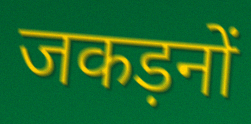
जकड़नों